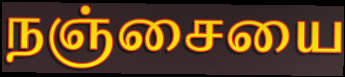
நஞ்சையை